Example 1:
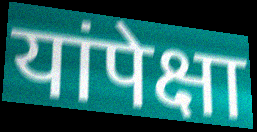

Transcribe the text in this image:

यांपेक्षा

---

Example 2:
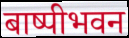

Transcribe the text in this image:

बाष्पीभवन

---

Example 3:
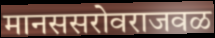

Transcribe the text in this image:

मानससरोवराजवळ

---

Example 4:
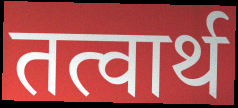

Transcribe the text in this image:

तत्वार्थ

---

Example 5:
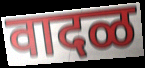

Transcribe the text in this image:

वादळ